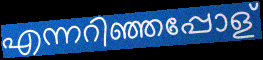
എന്നറിഞ്ഞപ്പോള്